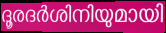
ദൂരദർശിനിയുമായി